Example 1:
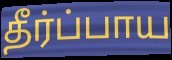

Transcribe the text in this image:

தீர்ப்பாய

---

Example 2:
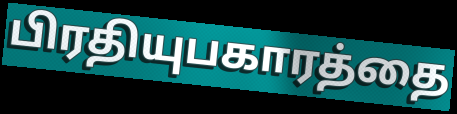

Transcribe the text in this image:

பிரதியுபகாரத்தை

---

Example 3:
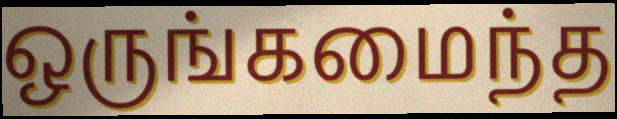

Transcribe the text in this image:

ஒருங்கமைந்த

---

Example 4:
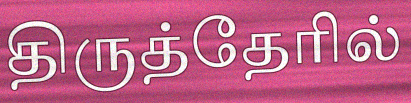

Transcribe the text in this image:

திருத்தேரில்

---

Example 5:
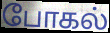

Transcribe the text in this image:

போகல்